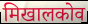
मिखालकोव